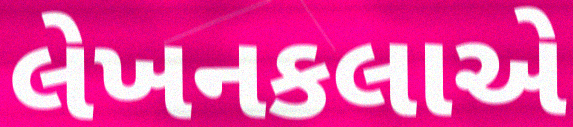
લેખનકલાએ